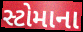
સ્ટોમાના